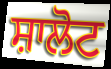
ਸ਼ਾਲੋਟ